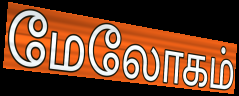
மேலோகம்